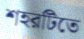
শহরটিতে